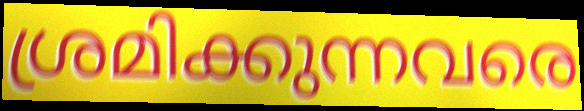
ശ്രമിക്കുന്നവരെ